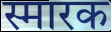
स्मारक